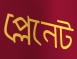
প্লেনেট